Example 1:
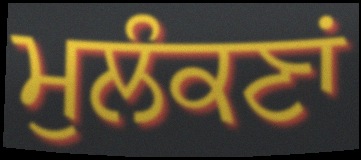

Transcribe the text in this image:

ਮੁਲੰਕਣਾਂ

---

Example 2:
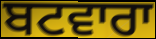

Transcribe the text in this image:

ਬਟਵਾਰਾ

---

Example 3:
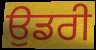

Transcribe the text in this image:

ਉਡਰੀ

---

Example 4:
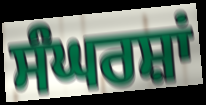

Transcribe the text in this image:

ਸੰਘਰਸ਼ਾਂ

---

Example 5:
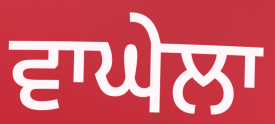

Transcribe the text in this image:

ਵਾਘੇਲਾ